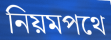
নিয়মপথে